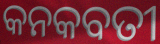
କନକବତୀ